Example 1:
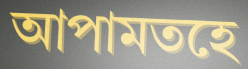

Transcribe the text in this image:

আপামতহে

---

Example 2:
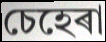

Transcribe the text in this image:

চেহেৰা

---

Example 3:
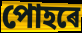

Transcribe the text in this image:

পোহৰে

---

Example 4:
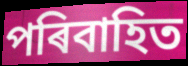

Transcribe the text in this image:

পৰিবাহিত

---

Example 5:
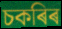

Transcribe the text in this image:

চকৰিৰ